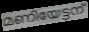
മണിയേട്ടന്